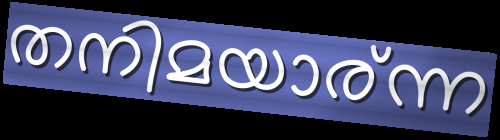
തനിമയാര്ന്ന